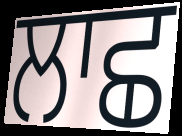
ਲਾਛ